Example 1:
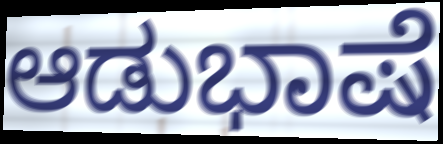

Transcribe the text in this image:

ಆಡುಭಾಷೆ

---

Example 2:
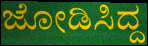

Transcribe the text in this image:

ಜೋಡಿಸಿದ್ದ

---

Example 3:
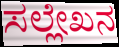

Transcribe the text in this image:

ಸಲ್ಲೇಖನ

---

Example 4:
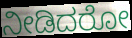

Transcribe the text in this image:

ನೀಡಿದರೋ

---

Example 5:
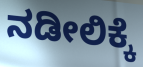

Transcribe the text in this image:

ನಡೀಲಿಕ್ಕೆ